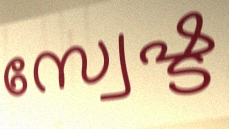
സ്വേഷ്ട